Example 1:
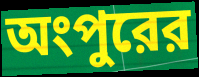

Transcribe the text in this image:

অংপুরের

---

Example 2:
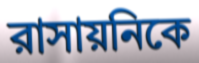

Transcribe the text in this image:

রাসায়নিকে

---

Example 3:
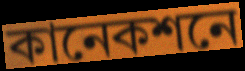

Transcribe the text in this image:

কানেকশনে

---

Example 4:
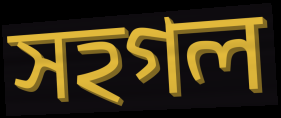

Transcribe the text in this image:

সহগল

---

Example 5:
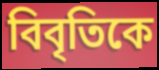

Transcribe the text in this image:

বিবৃতিকে